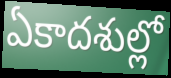
ఏకాదశుల్లో